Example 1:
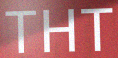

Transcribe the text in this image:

THT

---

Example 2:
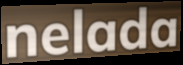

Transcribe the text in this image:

nelada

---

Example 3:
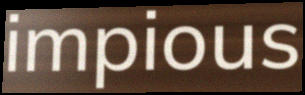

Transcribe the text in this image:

impious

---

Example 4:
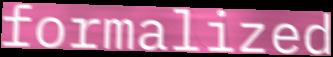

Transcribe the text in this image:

formalized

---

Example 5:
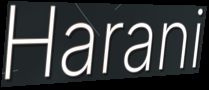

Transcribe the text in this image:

Harani